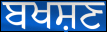
ਬਖਸ਼ਣ